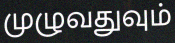
முழுவதுவும்